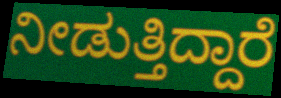
ನೀಡುತ್ತಿದ್ದಾರೆ